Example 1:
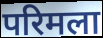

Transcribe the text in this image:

परिमला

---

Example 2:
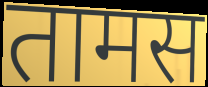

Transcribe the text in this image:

तामस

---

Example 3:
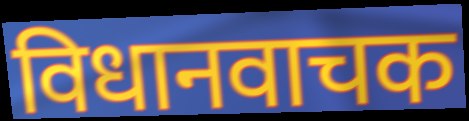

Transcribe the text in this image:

विधानवाचक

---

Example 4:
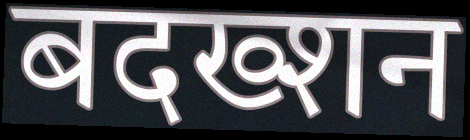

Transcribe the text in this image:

बदख्शन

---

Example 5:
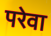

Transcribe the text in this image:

परेवा